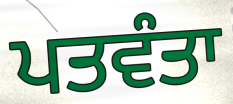
ਪਤਵੰਤਾ